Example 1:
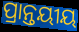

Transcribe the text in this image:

ପ୍ରାନ୍ତୟୀୟ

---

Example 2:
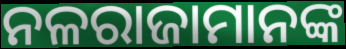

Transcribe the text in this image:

ନଳରାଜାମାନଙ୍କ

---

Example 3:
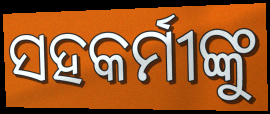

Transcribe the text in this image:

ସହକର୍ମୀଙ୍କୁ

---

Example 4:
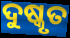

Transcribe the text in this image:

ଦୁଷ୍କୃତ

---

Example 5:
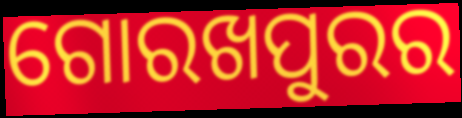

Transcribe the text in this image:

ଗୋରଖପୁରର